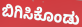
ಬಿಗಿಸಿಕೊಂಡು